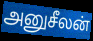
அனுசீலன்